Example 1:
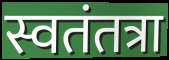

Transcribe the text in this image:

स्वतंतत्रा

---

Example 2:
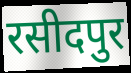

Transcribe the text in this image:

रसीदपुर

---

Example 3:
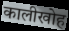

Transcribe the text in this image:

कालीखोह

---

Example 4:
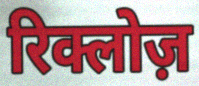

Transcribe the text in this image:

रिक्लोज़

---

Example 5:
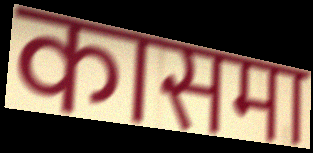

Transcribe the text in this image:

कासमा